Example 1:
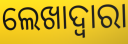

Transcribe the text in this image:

ଲେଖାଦ୍ୱାରା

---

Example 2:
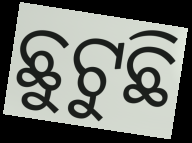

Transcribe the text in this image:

ଛୁଟୁଛି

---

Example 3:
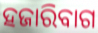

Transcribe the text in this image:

ହଜାରିବାଗ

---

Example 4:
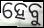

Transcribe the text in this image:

ହେବୁ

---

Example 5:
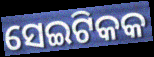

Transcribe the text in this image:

ସେଇଟିକକ